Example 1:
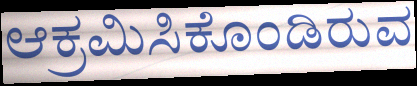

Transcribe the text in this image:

ಆಕ್ರಮಿಸಿಕೊಂಡಿರುವ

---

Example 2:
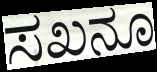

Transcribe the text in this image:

ಸಖನೂ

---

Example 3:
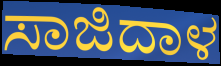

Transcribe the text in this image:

ಸಾಜಿದಾಳ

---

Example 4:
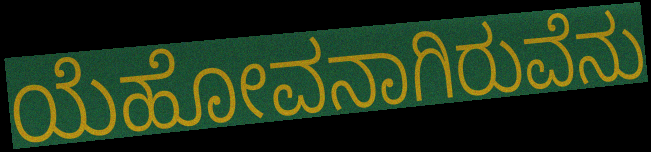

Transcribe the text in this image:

ಯೆಹೋವನಾಗಿರುವೆನು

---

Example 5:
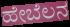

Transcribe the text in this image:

ಹೇಬೆಲನ